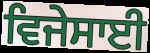
ਵਿਜੇਸਾਈ